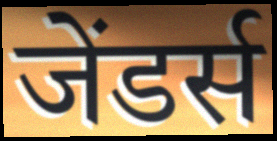
जेंडर्स